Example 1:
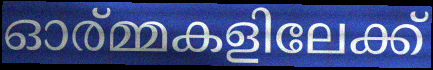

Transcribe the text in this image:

ഓര്മ്മകളിലേക്ക്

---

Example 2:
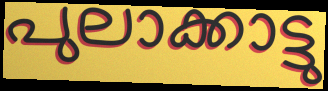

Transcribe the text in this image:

പുലാക്കാട്ടു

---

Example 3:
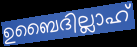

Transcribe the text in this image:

ഉബൈദില്ലാഹ്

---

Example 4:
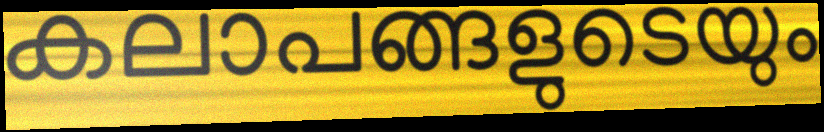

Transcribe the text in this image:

കലാപങ്ങളുടെയും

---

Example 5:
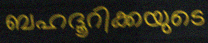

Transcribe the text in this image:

ബഹദൂറിക്കയുടെ